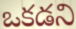
ఒకడని